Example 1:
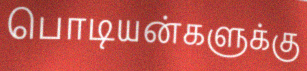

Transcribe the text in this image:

பொடியன்களுக்கு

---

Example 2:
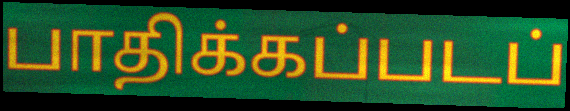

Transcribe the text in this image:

பாதிக்கப்படப்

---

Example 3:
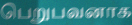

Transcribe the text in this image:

பெறுபவனாக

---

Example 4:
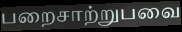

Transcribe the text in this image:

பறைசாற்றுபவை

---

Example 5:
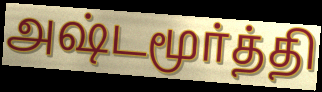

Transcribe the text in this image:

அஷ்டமூர்த்தி